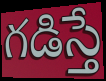
గడిస్తే